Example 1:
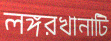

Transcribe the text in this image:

লঙ্গরখানাটি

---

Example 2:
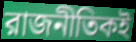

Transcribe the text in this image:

রাজনীতিকই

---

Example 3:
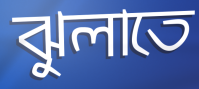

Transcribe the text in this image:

ঝুলাতে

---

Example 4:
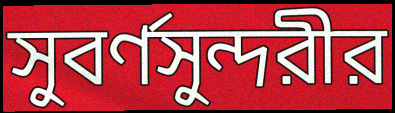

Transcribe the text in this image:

সুবর্ণসুন্দরীর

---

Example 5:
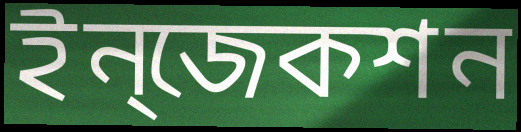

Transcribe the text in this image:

ইন্‌জেকশন